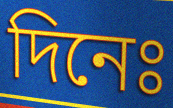
দিনেঃ